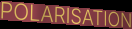
POLARISATION